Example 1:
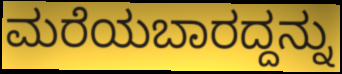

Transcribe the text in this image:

ಮರೆಯಬಾರದ್ದನ್ನು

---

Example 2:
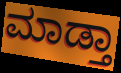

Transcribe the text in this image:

ಮಾಡ್ತಾ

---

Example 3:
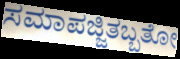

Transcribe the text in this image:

ಸಮಾಪಜ್ಜಿತಬ್ಬತೋ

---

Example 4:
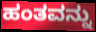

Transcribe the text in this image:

ಹಂತವನ್ನು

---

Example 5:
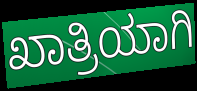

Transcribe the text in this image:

ಖಾತ್ರಿಯಾಗಿ